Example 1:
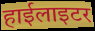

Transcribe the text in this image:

हाईलाइटर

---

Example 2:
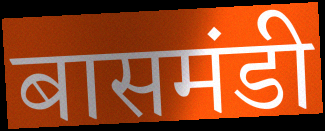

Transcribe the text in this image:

बासमंडी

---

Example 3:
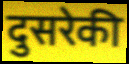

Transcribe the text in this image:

दुसरेकी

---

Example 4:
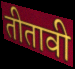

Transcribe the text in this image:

तीतावी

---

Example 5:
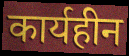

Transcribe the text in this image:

कार्यहीन